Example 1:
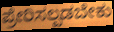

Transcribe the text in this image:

ಪ್ರೇರಿಸಲ್ಪಡಬೇಕು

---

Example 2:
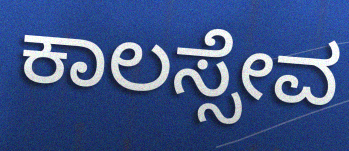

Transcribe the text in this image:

ಕಾಲಸ್ಸೇವ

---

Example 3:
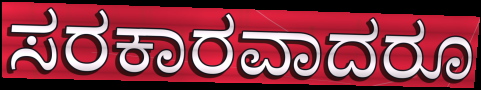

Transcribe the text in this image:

ಸರಕಾರವಾದರೂ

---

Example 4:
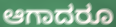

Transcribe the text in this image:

ಆಗಾದರೂ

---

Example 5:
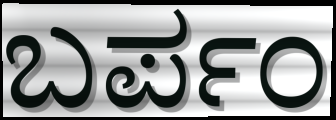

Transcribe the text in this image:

ಬರ್ಪಂ